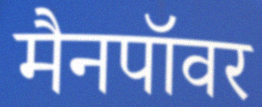
मैनपॉवर